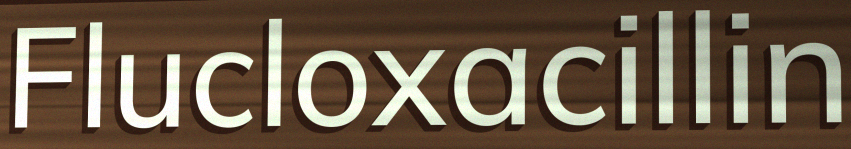
Flucloxacillin